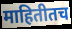
माहितीतच